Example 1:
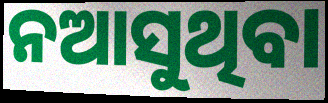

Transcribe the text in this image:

ନଆସୁଥିବା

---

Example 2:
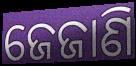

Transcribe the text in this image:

ଜେଜାଣି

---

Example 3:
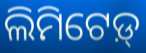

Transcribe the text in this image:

ଲିମିଟେଡ଼୍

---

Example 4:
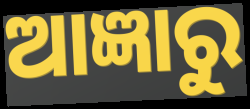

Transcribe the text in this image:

ଆଜ୍ଞାରୁ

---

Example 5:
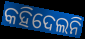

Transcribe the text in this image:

କହିଦେଲନି